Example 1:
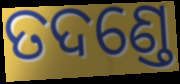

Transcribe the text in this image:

ତଦଣ୍ଡେ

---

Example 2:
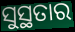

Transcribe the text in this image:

ସୁସ୍ଥତାର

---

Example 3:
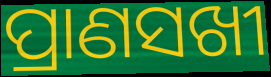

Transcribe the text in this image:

ପ୍ରାଣସଖୀ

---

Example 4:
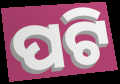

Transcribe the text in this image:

ପଟି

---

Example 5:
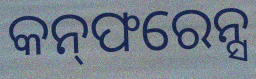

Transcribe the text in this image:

କନ୍‌ଫରେନ୍ସ